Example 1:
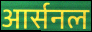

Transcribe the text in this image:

आर्सनल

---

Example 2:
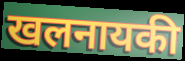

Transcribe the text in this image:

खलनायकी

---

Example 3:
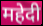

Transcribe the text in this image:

महेदी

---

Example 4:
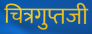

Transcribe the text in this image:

चित्रगुप्तजी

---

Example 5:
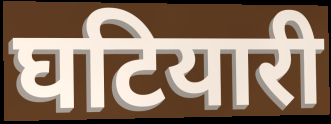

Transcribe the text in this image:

घटियारी